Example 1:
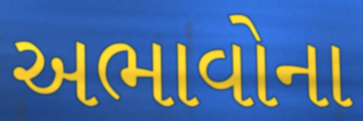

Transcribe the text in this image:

અભાવોના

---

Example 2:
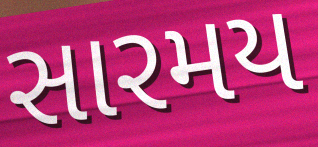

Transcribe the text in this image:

સારમય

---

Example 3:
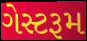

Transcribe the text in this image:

ગેસ્ટરૂમ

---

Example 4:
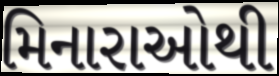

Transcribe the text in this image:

મિનારાઓથી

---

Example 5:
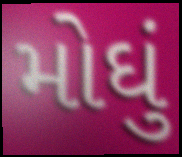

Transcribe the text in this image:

મોઘું